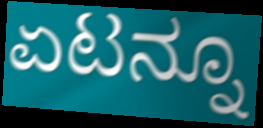
ಏಟನ್ನೂ